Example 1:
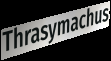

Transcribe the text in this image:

Thrasymachus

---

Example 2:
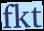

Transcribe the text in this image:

fkt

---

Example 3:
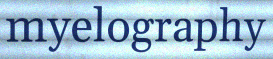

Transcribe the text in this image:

myelography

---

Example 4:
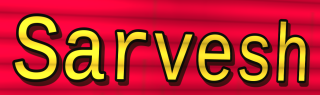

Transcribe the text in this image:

Sarvesh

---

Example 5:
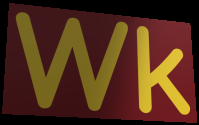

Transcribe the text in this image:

Wk